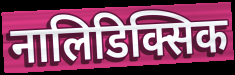
नालिडिक्सिक